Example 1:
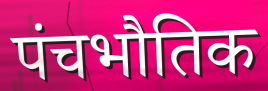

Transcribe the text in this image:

पंचभौतिक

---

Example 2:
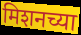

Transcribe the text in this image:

मिशनच्या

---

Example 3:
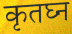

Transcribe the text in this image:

कृतघ्न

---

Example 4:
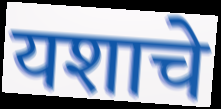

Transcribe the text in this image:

यशाचे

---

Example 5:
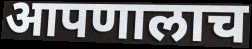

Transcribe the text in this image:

आपणालाच